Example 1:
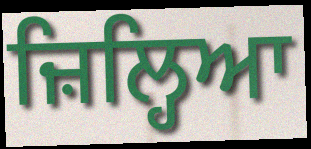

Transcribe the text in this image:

ਜ਼ਿਲ੍ਹਿਆ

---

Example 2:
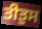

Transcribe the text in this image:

ਤੀਤੁਸ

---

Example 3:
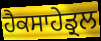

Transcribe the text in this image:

ਹੈਕਸਾਹੇਡ੍ਰਲ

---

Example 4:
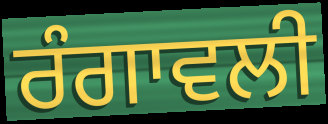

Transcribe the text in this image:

ਰੰਗਾਵਲੀ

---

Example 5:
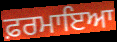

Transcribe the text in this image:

ਫ਼ਰਮਾਇਆ